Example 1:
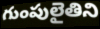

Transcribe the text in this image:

గుంపులైతిని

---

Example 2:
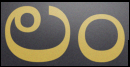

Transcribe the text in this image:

లం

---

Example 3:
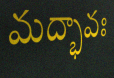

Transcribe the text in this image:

మద్భావః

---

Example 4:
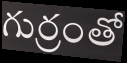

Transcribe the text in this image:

గుర్రంతో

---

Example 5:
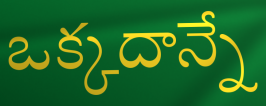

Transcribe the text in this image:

ఒక్కదాన్నే